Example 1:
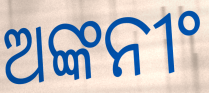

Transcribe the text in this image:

ଅଙ୍କନୀଂ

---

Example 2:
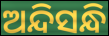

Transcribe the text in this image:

ଅନ୍ଦିସନ୍ଧି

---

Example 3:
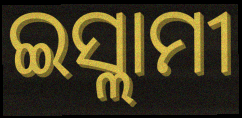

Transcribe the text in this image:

ଇସ୍ଲାମୀ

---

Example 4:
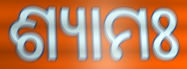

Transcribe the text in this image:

ଶ୍ୟାମଃ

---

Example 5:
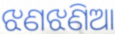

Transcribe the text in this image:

ଝଣଝଣିଆ